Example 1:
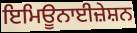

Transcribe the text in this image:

ਇਮਿਊਨਾਈਜ਼ੇਸ਼ਨ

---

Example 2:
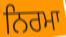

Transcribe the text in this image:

ਨਿਰਮਾ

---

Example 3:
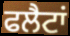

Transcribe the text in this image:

ਫਲੈਟਾਂ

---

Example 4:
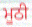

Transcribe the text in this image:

ਮੂਠੀ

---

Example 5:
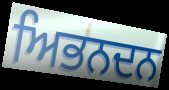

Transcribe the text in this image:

ਅਿਭਨਦਨ